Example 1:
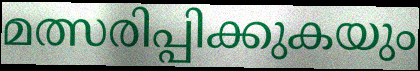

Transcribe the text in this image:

മത്സരിപ്പിക്കുകയും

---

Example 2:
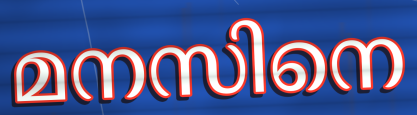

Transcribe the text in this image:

മനസിനെ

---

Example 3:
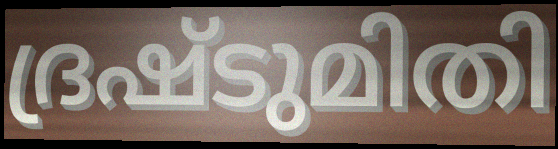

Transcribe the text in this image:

ദ്രഷ്ടുമിതി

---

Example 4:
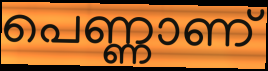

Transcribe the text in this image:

പെണ്ണാണ്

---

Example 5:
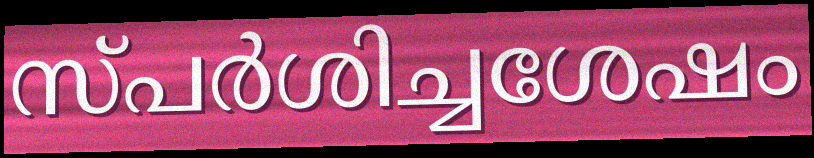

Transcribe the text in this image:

സ്പർശിച്ചശേഷം